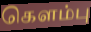
கௌம்பு